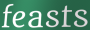
feasts